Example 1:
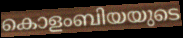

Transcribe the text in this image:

കൊളംബിയയുടെ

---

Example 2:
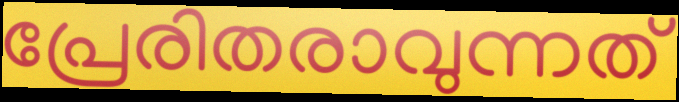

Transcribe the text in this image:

പ്രേരിതരാവുന്നത്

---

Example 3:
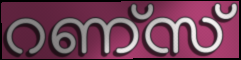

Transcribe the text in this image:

റണ്സ്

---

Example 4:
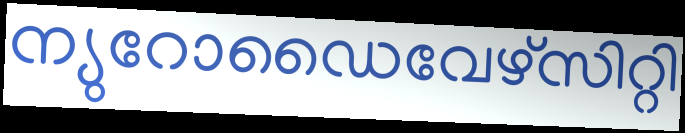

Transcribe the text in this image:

ന്യുറോഡൈവേഴ്സിറ്റി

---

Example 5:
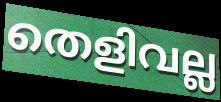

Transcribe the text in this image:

തെളിവല്ല